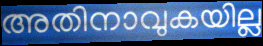
അതിനാവുകയില്ല